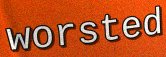
worsted